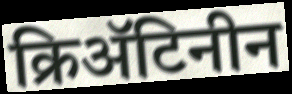
क्रिॲटिनीन